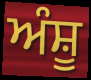
ਅੰਸ਼ੂ